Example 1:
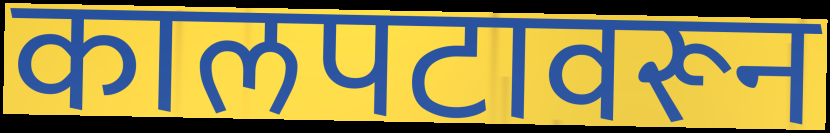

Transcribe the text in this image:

कालपटावरून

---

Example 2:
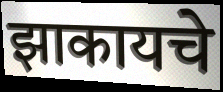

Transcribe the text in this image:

झाकायचे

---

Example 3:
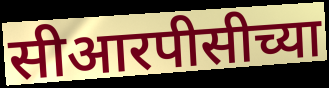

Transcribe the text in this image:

सीआरपीसीच्या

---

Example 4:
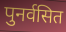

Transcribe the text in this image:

पुनर्वसित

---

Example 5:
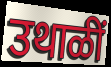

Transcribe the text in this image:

उथाळीं